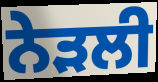
ਨੇੜਲੀ